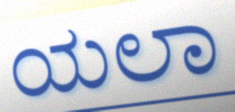
ಯಲಾ